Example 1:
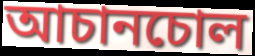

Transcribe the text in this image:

আচানচোল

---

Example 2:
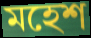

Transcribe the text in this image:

মহেশ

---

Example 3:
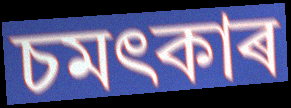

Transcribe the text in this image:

চমৎকাৰ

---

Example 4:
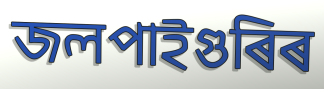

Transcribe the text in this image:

জলপাইগুৰিৰ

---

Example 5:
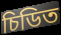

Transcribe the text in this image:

চিডিত